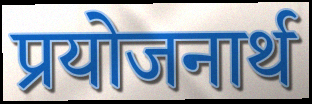
प्रयोजनार्थ